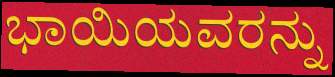
ಭಾಯಿಯವರನ್ನು